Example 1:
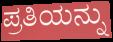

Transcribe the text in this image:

ಪ್ರತಿಯನ್ನು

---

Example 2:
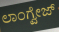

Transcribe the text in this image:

ಲಾಂಗ್ವೇಜ್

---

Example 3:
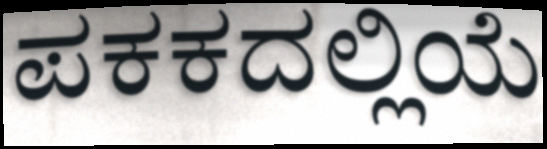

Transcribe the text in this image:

ಪಕಕದಲ್ಲಿಯೆ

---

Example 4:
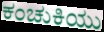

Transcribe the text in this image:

ಕಂಚುಕಿಯು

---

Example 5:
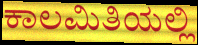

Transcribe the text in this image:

ಕಾಲಮಿತಿಯಲ್ಲಿ